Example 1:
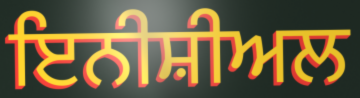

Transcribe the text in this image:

ਇਨੀਸ਼ੀਅਲ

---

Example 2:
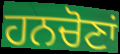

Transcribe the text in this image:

ਹਨਚੋਣਾਂ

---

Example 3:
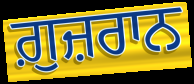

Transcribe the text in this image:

ਗ਼ੁਜ਼ਰਾਨ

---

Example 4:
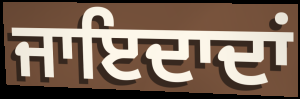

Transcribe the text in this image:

ਜਾਇਦਾਦਾਂ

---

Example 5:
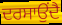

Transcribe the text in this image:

ਦਰਸਾਉਂਦੈ